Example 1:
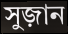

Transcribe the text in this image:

সুজ়ান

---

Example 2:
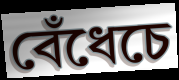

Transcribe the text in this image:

বেঁধেচে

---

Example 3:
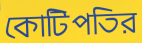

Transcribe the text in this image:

কোটিপতির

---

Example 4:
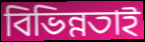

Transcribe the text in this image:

বিভিন্নতাই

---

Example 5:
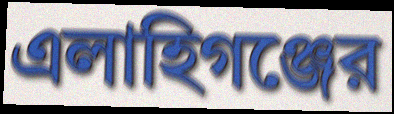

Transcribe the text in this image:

এলাহিগঞ্জের